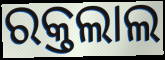
ରକ୍ତଲାଲ